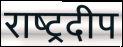
राष्ट्रदीप